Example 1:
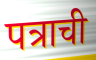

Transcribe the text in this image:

पत्राची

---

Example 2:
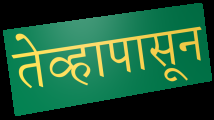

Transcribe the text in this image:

तेव्हापासून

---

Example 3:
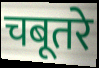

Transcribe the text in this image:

चबूतरे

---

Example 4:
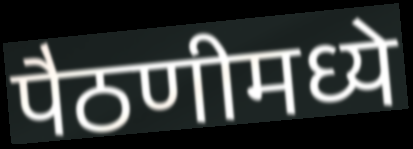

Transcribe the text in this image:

पैठणीमध्ये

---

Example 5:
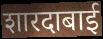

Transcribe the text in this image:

शारदाबाई